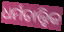
ଧର୍ମତାତ୍ତ୍ଵିକ